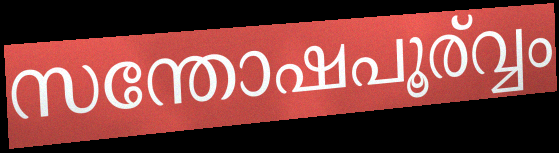
സന്തോഷപൂര്വ്വം